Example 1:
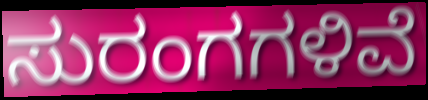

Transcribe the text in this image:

ಸುರಂಗಗಳಿವೆ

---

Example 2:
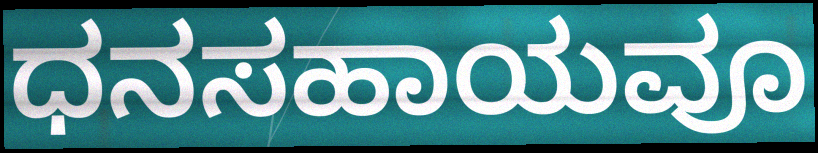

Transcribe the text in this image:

ಧನಸಹಾಯವೂ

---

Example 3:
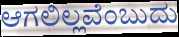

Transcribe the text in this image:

ಆಗಲಿಲ್ಲವೆಂಬುದು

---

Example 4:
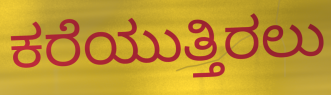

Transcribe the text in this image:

ಕರೆಯುತ್ತಿರಲು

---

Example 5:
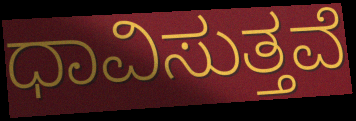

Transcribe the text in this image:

ಧಾವಿಸುತ್ತವೆ